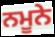
ਨਮੂਨੇ